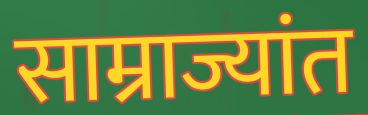
साम्राज्यांत